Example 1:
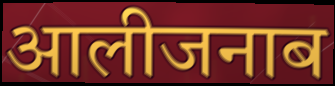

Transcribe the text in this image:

आलीजनाब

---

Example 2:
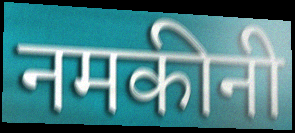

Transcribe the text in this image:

नमकीनी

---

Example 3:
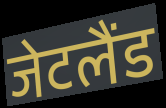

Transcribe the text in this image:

जेटलैंड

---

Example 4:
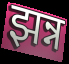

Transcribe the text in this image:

झन्न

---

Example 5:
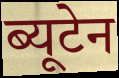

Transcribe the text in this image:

ब्यूटेन